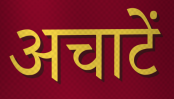
अचाटें